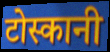
टोस्कानी